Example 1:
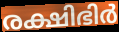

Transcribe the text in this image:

രക്ഷിഭിർ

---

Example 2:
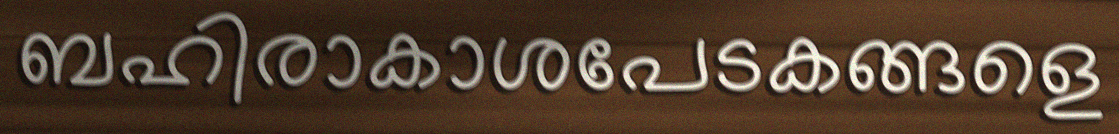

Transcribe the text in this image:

ബഹിരാകാശപേടകങ്ങളെ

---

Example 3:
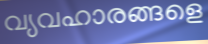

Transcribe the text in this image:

വ്യവഹാരങ്ങളെ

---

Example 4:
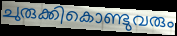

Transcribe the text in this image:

ചുരുക്കികൊണ്ടുവരും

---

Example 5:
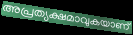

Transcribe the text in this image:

അപ്രത്യക്ഷമാവുകയാണ്